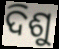
ଦିଶୁ